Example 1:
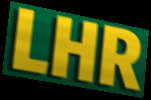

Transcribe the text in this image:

LHR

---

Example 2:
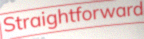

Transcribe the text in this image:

Straightforward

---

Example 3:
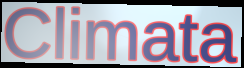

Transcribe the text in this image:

Climata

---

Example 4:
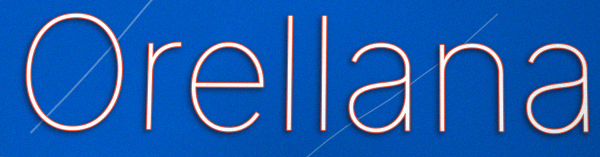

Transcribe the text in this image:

Orellana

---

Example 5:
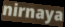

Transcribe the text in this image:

nirnaya